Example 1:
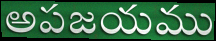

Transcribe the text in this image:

అపజయము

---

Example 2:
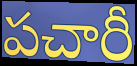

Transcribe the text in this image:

పచారీ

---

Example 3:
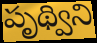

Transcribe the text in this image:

పృథ్విని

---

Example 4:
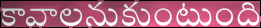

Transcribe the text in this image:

కావాలనుకుంటుంది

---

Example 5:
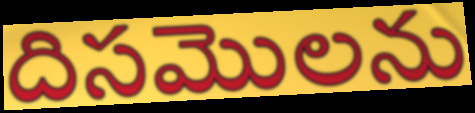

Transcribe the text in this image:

దిసమొలను